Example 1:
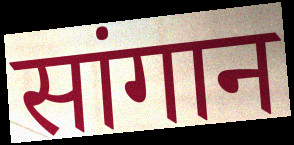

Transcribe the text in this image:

सांगान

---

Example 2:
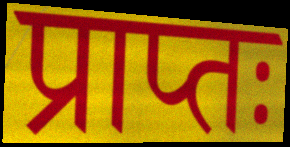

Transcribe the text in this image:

प्राप्तः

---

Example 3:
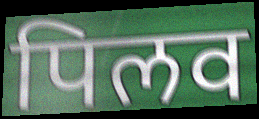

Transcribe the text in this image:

पिलव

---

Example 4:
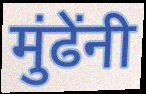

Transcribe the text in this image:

मुंढेंनी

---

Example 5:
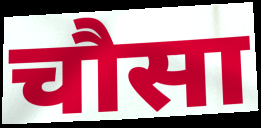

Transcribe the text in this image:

चौसा